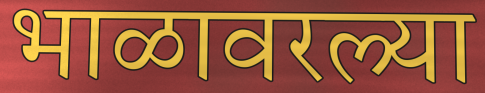
भाळावरल्या